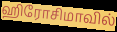
ஹிரோசிமாவில்